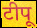
टीपू